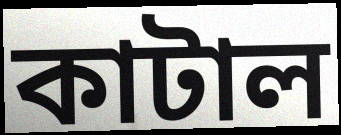
কাটাল